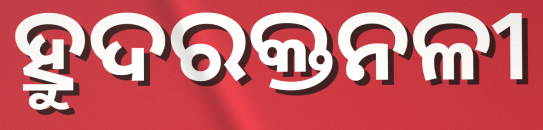
ହ୍ରୁଦରକ୍ତନଳୀ